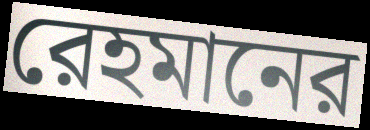
রেহমানের